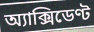
অ্যাক্সিডেণ্ট